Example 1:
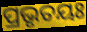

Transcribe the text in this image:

ପ୍ରଭୃତୟଃ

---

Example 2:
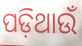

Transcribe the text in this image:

ପଡ଼ିଥାଉଁ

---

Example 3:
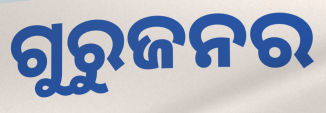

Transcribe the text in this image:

ଗୁରୁଜନର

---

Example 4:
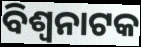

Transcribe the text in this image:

ବିଶ୍ୱନାଟକ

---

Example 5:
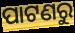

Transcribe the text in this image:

ପାଟଣରୁ